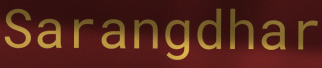
Sarangdhar